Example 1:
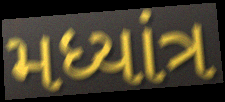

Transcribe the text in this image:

મધ્યાંત્ર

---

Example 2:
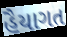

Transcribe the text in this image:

હૈયાગત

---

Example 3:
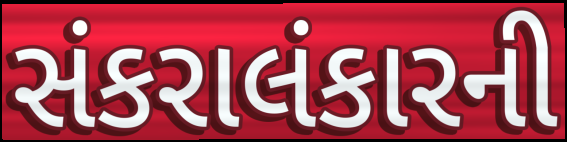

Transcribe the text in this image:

સંકરાલંકારની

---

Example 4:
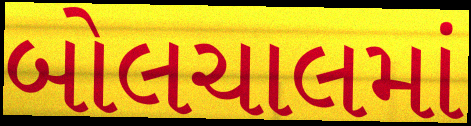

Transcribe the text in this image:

બોલચાલમાં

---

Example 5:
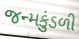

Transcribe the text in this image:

જન્મકુંડળી